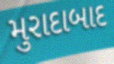
મુરાદાબાદ